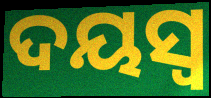
ଦୟସ୍ଵ